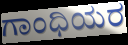
ಗಾಂಧಿಯರ